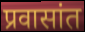
प्रवासांत